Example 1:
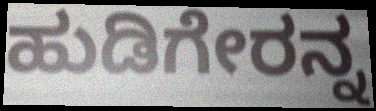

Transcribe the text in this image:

ಹುಡಿಗೇರನ್ನ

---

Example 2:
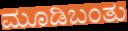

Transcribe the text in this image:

ಮೂಡಿಬಂತು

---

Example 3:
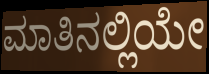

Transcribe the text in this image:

ಮಾತಿನಲ್ಲಿಯೇ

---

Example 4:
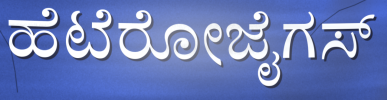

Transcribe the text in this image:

ಹೆಟೆರೋಜೈಗಸ್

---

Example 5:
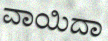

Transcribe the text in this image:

ವಾಯಿದಾ